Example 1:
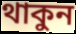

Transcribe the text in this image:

থাকুন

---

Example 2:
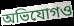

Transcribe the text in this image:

অভিযোগও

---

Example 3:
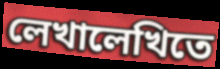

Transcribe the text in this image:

লেখালেখিতে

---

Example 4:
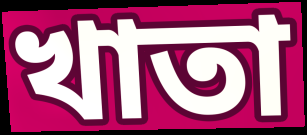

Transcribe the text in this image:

খাতা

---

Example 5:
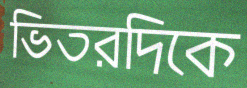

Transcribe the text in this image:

ভিতরদিকে